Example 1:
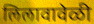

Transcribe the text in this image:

लिलावावेळी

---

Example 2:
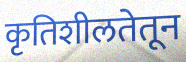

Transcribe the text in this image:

कृतिशीलतेतून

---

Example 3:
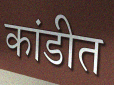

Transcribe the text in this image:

कांडीत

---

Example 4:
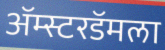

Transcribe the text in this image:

ॲम्स्टरडॅमला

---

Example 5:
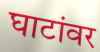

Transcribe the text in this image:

घाटांवर